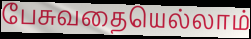
பேசுவதையெல்லாம்